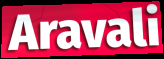
Aravali